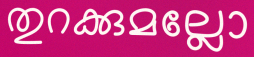
തുറക്കുമല്ലോ